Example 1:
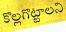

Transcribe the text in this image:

కొల్లగొట్టాలని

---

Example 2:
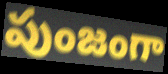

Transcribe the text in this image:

పుంజంగా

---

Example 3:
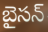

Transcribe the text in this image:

బైసన్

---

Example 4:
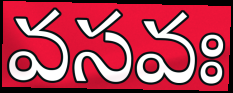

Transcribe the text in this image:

వసవః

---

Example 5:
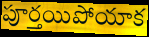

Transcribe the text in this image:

పూర్తయిపోయాక